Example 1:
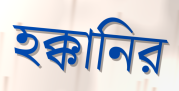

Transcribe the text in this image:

হক্কানির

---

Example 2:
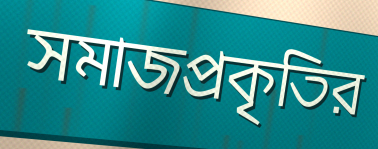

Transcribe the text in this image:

সমাজপ্রকৃতির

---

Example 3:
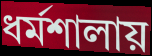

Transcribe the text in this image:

ধর্মশালায়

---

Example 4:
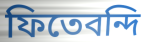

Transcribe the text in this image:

ফিতেবন্দি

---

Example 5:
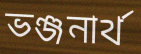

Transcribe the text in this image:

ভঞ্জনার্থ